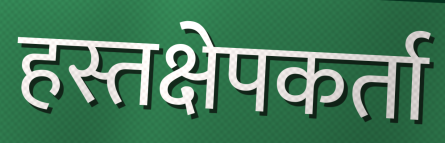
हस्तक्षेपकर्ता